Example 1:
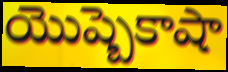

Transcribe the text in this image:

యొష్బెకాషా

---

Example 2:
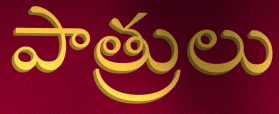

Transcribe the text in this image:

పాత్రులు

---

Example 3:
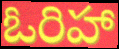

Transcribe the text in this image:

ఓరిహా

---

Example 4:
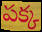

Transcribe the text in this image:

పక్క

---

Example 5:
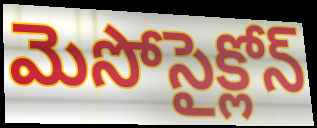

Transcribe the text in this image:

మెసోసైక్లోన్